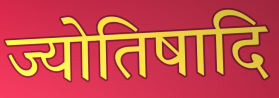
ज्योतिषादि